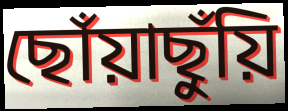
ছোঁয়াছুঁয়ি